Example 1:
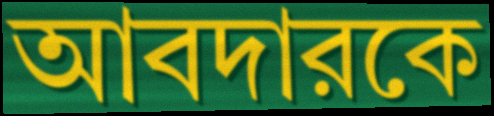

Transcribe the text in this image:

আবদারকে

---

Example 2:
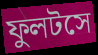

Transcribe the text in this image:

ফুলটসে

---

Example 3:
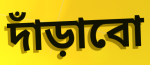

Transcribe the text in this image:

দাঁড়াবো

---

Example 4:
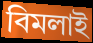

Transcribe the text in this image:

বিমলাই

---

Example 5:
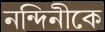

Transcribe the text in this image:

নন্দিনীকে